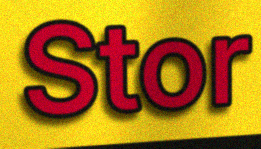
Stor